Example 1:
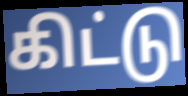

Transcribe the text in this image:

கிட்டு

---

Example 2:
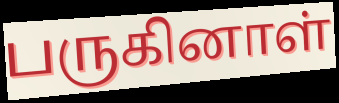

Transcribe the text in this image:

பருகினாள்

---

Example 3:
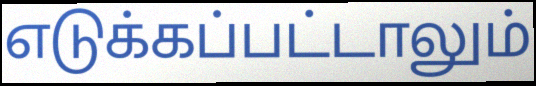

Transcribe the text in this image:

எடுக்கப்பட்டாலும்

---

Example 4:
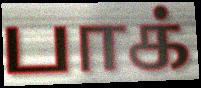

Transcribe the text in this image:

பாக்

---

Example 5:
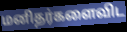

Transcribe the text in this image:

மனிதர்களைவிட